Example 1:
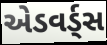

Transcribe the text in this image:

એડવર્ડ્સ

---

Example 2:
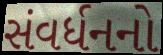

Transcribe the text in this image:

સંવર્ધનનો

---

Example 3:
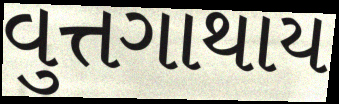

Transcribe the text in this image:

વુત્તગાથાય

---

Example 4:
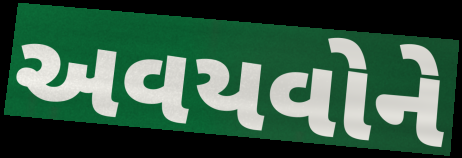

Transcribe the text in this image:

અવયવોને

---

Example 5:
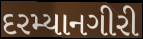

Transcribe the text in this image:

દરમ્યાનગીરી